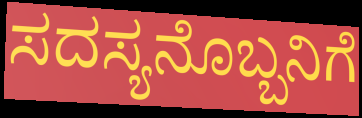
ಸದಸ್ಯನೊಬ್ಬನಿಗೆ